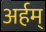
अर्हम्